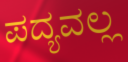
ಪದ್ಯವಲ್ಲ